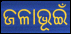
ଜଳାଭୂଇଁ